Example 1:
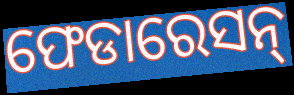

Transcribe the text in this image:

ଫେଡାରେସନ୍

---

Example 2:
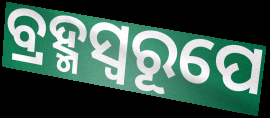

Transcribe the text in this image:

ବ୍ରହ୍ମସ୍ୱରୂପେ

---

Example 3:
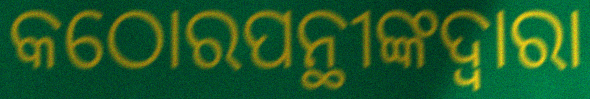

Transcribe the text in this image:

କଠୋରପନ୍ଥୀଙ୍କଦ୍ୱାରା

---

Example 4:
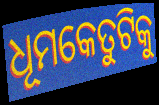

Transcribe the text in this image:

ଧୂମକେତୁଟିକୁ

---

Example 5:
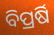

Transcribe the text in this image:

ବିପ୍ରର୍ଷି